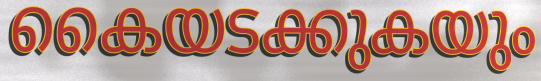
കൈയടക്കുകയും